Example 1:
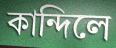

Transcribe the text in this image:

কান্দিলে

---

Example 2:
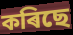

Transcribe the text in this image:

কৰিছে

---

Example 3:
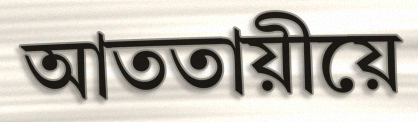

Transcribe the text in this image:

আততায়ীয়ে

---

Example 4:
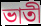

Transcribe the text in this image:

ভাতী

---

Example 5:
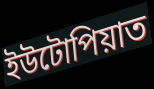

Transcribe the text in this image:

ইউটোপিয়াত